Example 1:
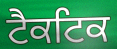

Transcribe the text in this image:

ਟੈਕਟਿਕ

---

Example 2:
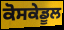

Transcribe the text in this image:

ਕੋਸਕੇਡੂਲ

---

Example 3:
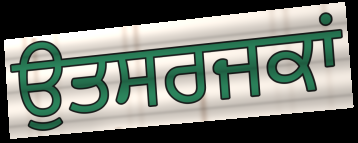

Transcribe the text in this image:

ਉਤਸਰਜਕਾਂ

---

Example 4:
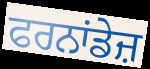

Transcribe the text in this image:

ਫਰਨਾਂਡੇਜ਼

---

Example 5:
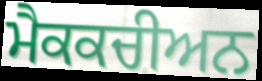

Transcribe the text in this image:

ਮੈਕਕਚੀਅਨ